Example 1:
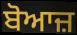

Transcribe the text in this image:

ਬੋਆਜ਼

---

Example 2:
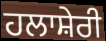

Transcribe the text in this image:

ਹਲਾਸ਼ੇਰੀ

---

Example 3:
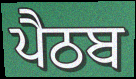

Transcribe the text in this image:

ਪੈਠਬ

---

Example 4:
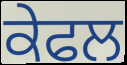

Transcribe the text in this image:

ਕੇਫਲ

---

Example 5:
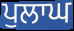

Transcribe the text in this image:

ਪੁਲਾਘ